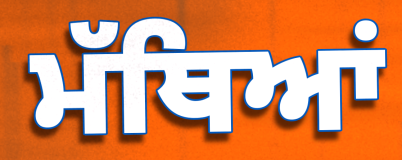
ਮੱਥਿਆਂ